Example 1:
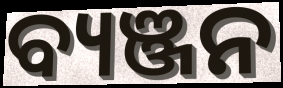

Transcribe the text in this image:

ବ୍ୟଞ୍ଜନ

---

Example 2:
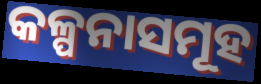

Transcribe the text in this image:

କଳ୍ପନାସମୂହ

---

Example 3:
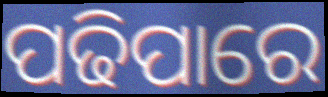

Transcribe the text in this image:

ପଢିପାରେ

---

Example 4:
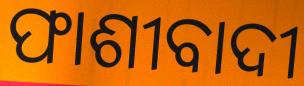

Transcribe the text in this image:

ଫାଶୀବାଦୀ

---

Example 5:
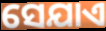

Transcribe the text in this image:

ସେଯାଏ